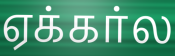
ஏக்கர்ல